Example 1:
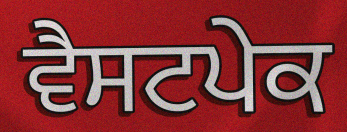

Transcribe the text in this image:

ਵੈਸਟਪੇਕ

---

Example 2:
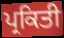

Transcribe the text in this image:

ਪ੍ਰਕਿਤੀ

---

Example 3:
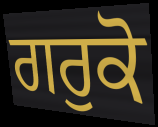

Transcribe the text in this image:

ਗਰੁਕੋ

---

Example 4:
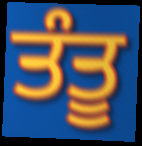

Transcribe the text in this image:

ਤੰਤੂ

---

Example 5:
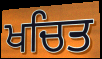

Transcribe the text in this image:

ਖਚਿਤ